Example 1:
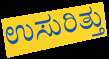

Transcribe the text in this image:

ಉಸುರಿತ್ತು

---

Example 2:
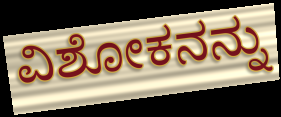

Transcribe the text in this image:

ವಿಶೋಕನನ್ನು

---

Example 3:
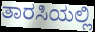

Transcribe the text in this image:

ತಾರಸಿಯಲ್ಲಿ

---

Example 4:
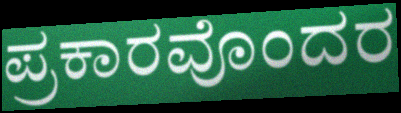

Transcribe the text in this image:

ಪ್ರಕಾರವೊಂದರ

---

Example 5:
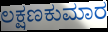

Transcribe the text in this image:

ಲಕ್ಷಣಕುಮಾರ